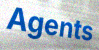
Agents